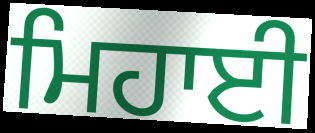
ਮਿਹਾਈ